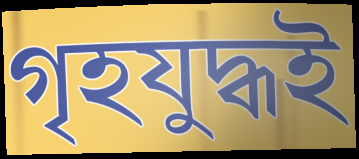
গৃহযুদ্ধই